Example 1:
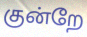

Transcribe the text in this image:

குன்றே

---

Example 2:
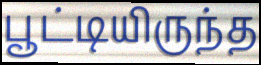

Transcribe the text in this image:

பூட்டியிருந்த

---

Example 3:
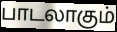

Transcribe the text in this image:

பாடலாகும்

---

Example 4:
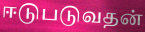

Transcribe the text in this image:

ஈடுபடுவதன்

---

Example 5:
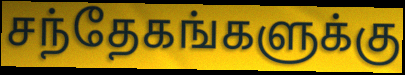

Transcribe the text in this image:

சந்தேகங்களுக்கு